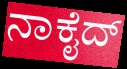
ನಾಕೈದ್